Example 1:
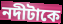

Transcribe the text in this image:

নদীটাকে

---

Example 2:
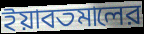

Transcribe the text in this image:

ইয়াবতমালের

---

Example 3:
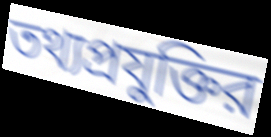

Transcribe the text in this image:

তথ্যপ্রযুক্তির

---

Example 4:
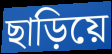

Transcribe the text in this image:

ছাড়িয়ে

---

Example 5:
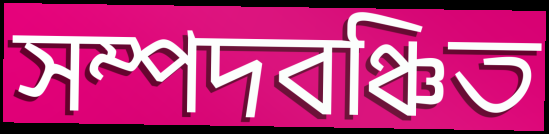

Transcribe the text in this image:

সম্পদবঞ্চিত